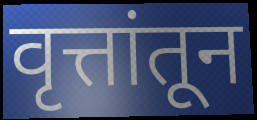
वृत्तांतून